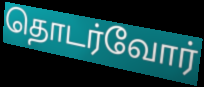
தொடர்வோர்